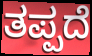
ತಪ್ಪದೆ